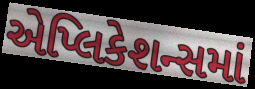
એપ્લિકેશન્સમાં